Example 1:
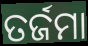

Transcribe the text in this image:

ତର୍ଜମା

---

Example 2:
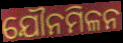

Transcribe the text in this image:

ଯୌନମିଳନ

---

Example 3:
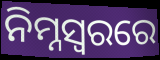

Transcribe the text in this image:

ନିମ୍ନସ୍ଵରରେ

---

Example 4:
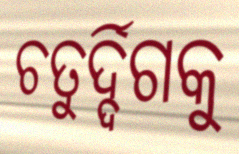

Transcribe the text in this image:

ଚତୁର୍ଦ୍ଦିଗକୁ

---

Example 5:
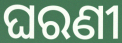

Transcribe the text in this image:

ଘରଣୀ